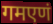
गमएणं